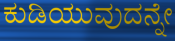
ಕುಡಿಯುವುದನ್ನೇ